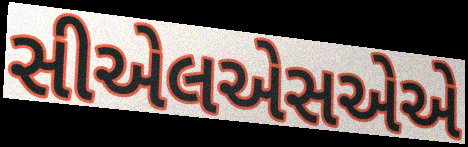
સીએલએસએએ